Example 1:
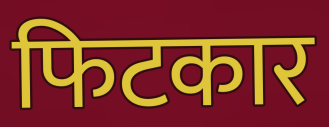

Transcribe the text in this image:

फिटकार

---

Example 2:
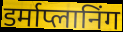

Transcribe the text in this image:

डर्माप्लानिंग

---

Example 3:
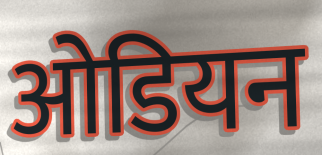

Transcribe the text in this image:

ओडियन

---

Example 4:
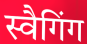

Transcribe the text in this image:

स्वैगिंग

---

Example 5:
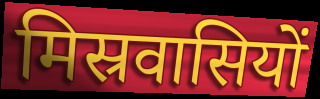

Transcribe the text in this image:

मिस्रवासियों